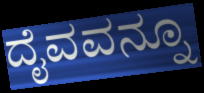
ದೈವವನ್ನೂ